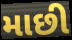
માછી